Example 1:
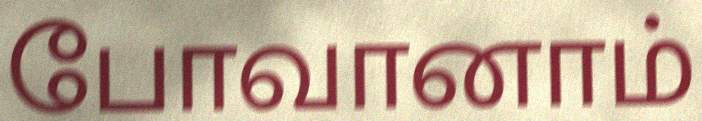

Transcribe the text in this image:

போவானாம்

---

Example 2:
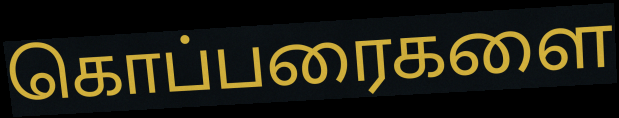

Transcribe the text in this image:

கொப்பரைகளை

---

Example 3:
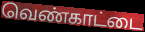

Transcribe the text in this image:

வெண்காட்டை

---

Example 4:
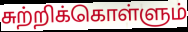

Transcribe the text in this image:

சுற்றிக்கொள்ளும்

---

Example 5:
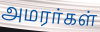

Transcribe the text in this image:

அமரர்கள்